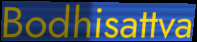
Bodhisattva